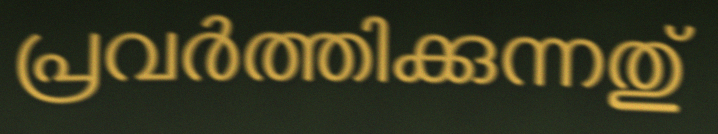
പ്രവർത്തിക്കുന്നതു്